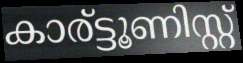
കാര്ട്ടൂണിസ്റ്റ്